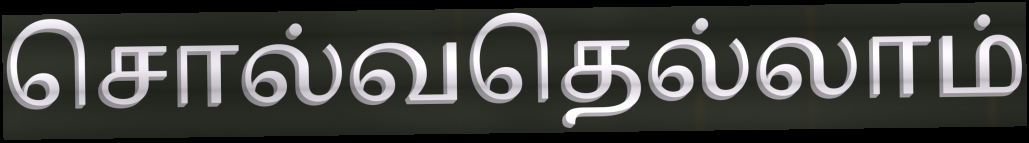
சொல்வதெல்லாம்